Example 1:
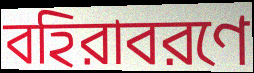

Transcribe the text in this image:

বহিরাবরণে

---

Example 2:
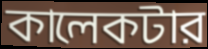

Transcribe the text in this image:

কালেকটার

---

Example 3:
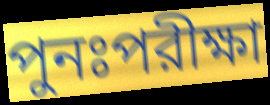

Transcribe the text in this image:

পুনঃপরীক্ষা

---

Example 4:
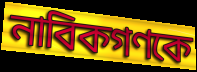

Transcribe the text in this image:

নাবিকগণকে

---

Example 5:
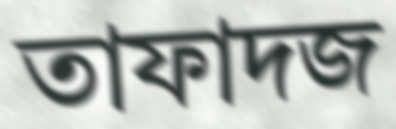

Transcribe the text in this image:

তাফাদজ